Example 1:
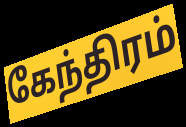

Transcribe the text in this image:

கேந்திரம்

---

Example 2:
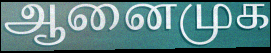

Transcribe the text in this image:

ஆனைமுக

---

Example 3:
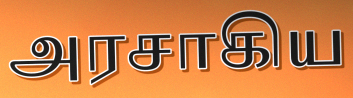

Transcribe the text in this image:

அரசாகிய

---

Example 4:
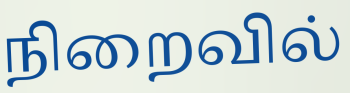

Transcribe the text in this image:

நிறைவில்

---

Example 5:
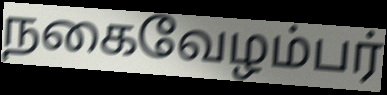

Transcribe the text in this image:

நகைவேழம்பர்